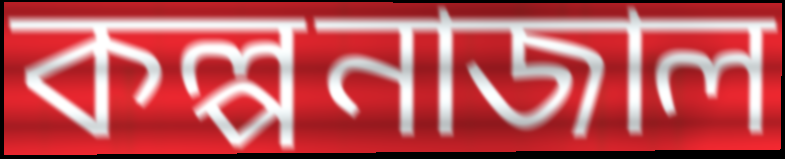
কল্পনাজাল